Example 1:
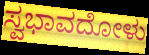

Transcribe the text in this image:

ಸ್ವಭಾವದೋಳು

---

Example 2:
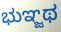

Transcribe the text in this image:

ಭುಞ್ಜಥ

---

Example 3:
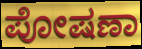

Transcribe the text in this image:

ಪೋಷಣಾ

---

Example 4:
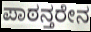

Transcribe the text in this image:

ಪಾಠನ್ತರೇನ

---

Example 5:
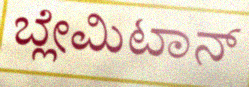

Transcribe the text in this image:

ಬ್ಲೇಮಿಟಾನ್